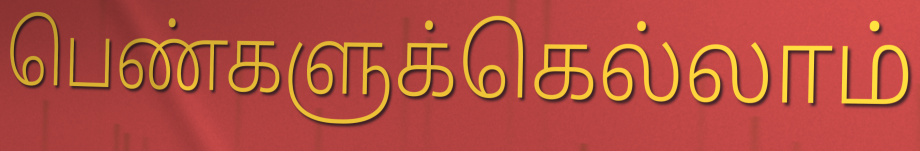
பெண்களுக்கெல்லாம்